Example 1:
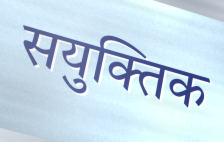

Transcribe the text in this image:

सयुक्तिक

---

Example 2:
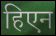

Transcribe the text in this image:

हिएन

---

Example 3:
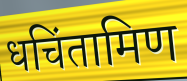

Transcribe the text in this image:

धचिंतामिण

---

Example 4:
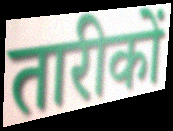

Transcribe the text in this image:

तारीकों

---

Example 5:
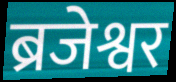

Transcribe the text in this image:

ब्रजेश्वर